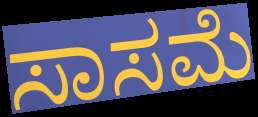
ಸಾಸಮೆ